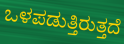
ಒಳಪಡುತ್ತಿರುತ್ತದೆ